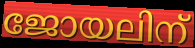
ജോയലിന്